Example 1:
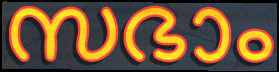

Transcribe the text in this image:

സഭാം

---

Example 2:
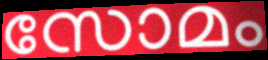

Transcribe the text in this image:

സോമം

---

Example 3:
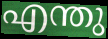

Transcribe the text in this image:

എന്തു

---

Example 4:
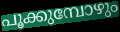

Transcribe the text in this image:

പൂക്കുമ്പോഴും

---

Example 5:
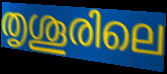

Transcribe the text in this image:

തൃശൂരിലെ